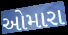
ઓમારા